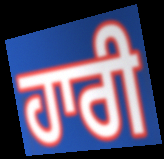
ਹਾਰੀ